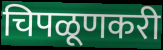
चिपळूणकरी